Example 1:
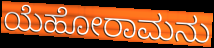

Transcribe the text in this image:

ಯೆಹೋರಾಮನು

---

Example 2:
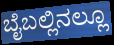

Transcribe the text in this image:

ಬೈಬಲ್ಲಿನಲ್ಲೂ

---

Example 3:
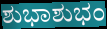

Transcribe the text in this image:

ಶುಭಾಶುಭಂ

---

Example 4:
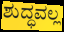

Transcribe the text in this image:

ಶುದ್ಧವಲ್ಲ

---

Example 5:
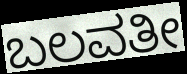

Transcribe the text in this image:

ಬಲವತೀ